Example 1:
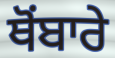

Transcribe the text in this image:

ਥੋਂਬਾਰੇ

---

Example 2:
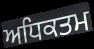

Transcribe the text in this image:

ਅਧਿਕਤਮ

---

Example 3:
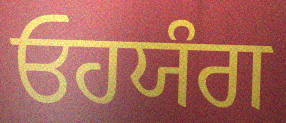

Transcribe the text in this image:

ਓਹਯੰਗ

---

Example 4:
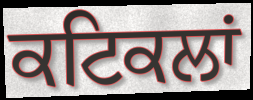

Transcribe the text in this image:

ਕਟਿਕਲਾਂ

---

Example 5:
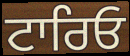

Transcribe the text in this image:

ਟਾਰਿਓ